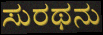
ಸುರಥನು